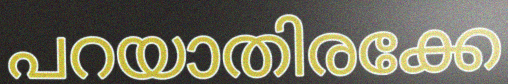
പറയാതിരക്കേ